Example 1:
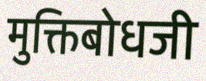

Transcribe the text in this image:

मुक्तिबोधजी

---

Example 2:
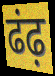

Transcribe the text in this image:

ढंढ़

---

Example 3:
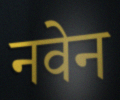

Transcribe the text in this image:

नवेन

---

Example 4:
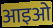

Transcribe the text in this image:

आइओ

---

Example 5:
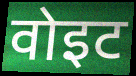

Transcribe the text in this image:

वोइट